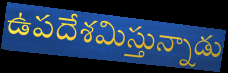
ఉపదేశమిస్తున్నాడు